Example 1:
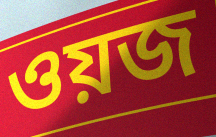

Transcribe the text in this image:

ওয়জ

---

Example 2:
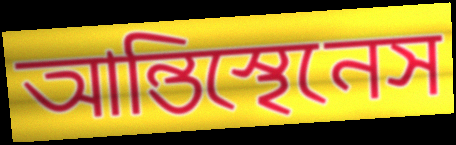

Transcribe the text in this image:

আন্তিস্থেনেস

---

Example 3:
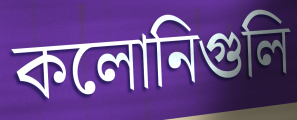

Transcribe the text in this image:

কলোনিগুলি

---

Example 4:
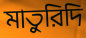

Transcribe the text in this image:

মাতুরিদি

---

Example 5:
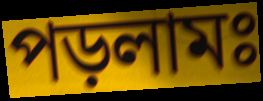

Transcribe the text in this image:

পড়লামঃ